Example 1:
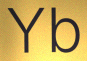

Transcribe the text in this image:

Yb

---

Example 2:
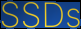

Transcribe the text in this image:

SSDs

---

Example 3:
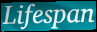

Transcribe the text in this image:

Lifespan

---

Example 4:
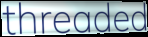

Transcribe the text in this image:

threaded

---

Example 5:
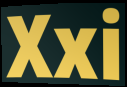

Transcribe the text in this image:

Xxi